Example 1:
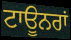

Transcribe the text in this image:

ਟਾਊਨਰਾਂ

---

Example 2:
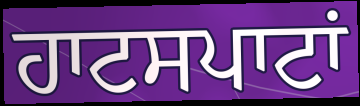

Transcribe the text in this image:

ਹਾਟਸਪਾਟਾਂ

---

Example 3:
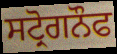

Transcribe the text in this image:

ਸਟ੍ਰੋਗਨੌਫ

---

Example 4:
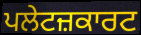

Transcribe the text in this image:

ਪਲੇਟਜ਼ਕਾਰਟ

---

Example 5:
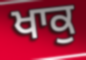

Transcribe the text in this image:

ਖਾਕੁ